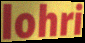
lohri